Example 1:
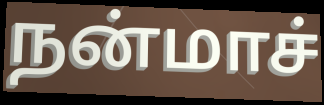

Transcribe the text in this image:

நன்மாச்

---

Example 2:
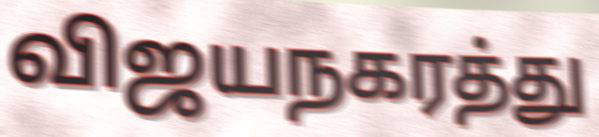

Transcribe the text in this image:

விஜயநகரத்து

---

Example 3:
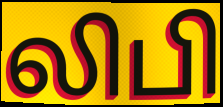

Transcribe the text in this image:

லிபி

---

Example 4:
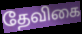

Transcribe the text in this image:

தேவிகை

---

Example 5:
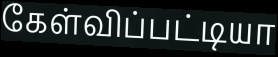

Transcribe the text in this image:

கேள்விப்பட்டியா